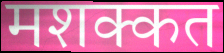
मशक्कत